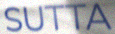
SUTTA